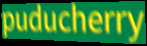
puducherry